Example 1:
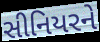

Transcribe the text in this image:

સીનિયરને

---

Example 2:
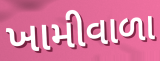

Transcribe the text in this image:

ખામીવાળા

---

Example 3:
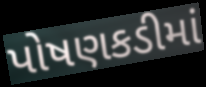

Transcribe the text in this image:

પોષણકડીમાં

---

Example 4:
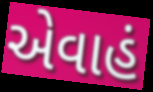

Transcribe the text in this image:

એવાહં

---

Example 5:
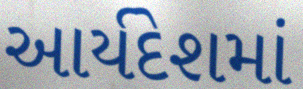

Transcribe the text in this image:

આર્યદેશમાં